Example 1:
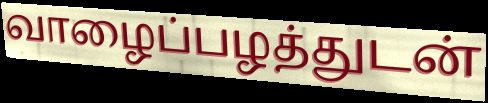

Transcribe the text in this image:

வாழைப்பழத்துடன்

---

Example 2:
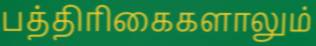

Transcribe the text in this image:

பத்திரிகைகளாலும்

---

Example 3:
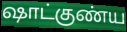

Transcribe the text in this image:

ஷாட்குண்ய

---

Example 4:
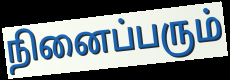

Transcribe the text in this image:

நினைப்பரும்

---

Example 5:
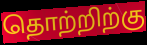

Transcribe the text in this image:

தொற்றிற்கு